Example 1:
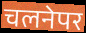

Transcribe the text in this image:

चलनेपर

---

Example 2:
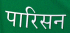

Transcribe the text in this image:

पारिसन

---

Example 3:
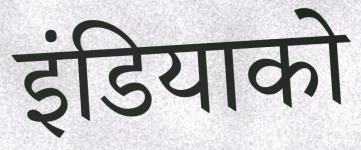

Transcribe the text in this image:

इंडियाको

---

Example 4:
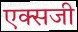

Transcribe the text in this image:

एक्सजी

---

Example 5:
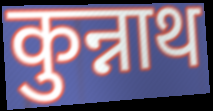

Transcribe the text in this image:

कुन्नाथ